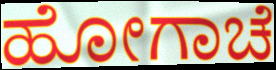
ಹೋಗಾಚೆ